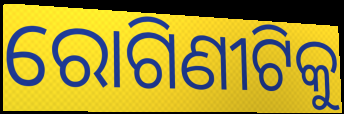
ରୋଗିଣୀଟିକୁ